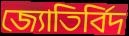
জ্যোতির্বিদ